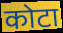
कोटा